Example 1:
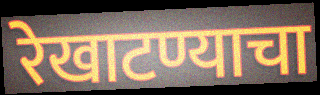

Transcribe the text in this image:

रेखाटण्याचा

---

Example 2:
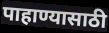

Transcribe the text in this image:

पाहाण्यासाठी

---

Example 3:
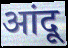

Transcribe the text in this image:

आंदू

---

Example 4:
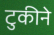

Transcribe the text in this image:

टुकीने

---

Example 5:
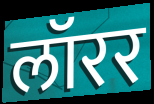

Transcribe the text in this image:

लॉरर